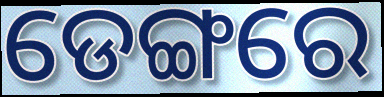
ଡେଙ୍ଗରେ